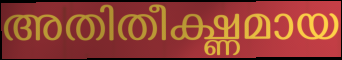
അതിതീക്ഷ്ണമായ